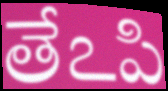
తేఽపి